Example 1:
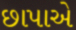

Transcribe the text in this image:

છાપાએ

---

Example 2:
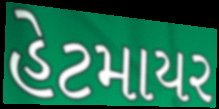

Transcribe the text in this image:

હેટમાયર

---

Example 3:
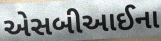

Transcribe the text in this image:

એસબીઆઈના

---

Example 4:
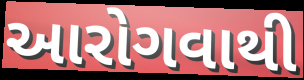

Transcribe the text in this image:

આરોગવાથી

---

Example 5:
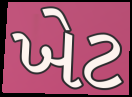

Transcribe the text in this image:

ખેટ